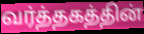
வர்த்தகத்தின்